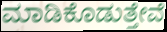
ಮಾಡಿಕೊಡುತ್ತೇವೆ